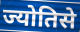
ज्योतिसे